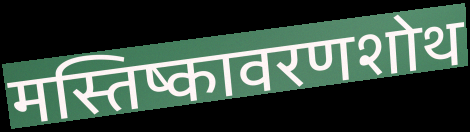
मस्तिष्कावरणशोथ